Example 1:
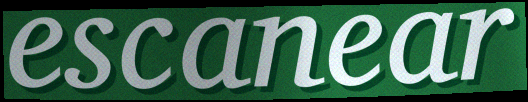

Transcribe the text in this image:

escanear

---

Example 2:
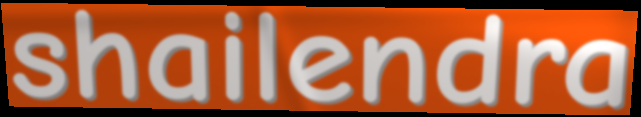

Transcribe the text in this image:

shailendra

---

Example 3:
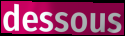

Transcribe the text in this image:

dessous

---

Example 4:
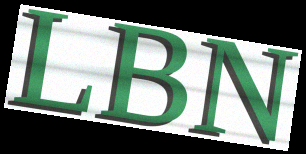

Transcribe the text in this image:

LBN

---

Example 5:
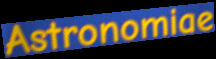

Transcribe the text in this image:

Astronomiae